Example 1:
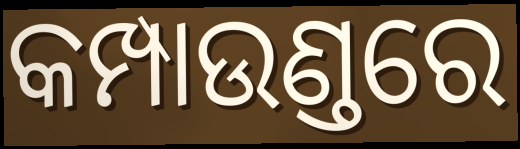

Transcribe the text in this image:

କମ୍ପାଉଣ୍ଡରେ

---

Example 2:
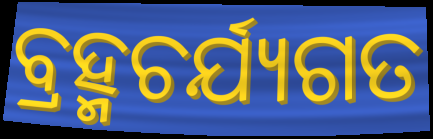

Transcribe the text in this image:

ବ୍ରହ୍ମଚର୍ଯ୍ୟଗତ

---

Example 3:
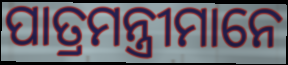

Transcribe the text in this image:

ପାତ୍ରମନ୍ତ୍ରୀମାନେ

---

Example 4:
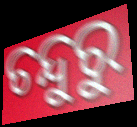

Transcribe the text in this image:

ଚନ୍ଦୁରୁ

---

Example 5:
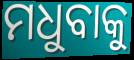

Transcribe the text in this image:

ମଧୁବାକୁ